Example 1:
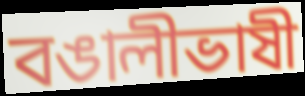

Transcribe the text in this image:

বঙালীভাষী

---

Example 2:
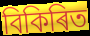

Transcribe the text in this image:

বিকিৰিত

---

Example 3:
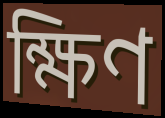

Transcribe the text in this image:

ক্ষিণ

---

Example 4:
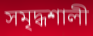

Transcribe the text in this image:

সমৃদ্ধশালী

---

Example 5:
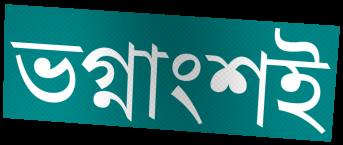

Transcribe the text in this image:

ভগ্নাংশই